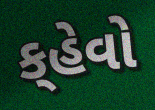
ક્‌હેવો